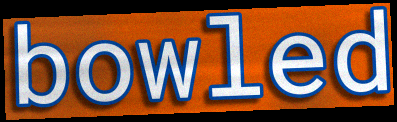
bowled